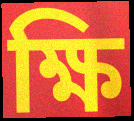
ক্ষি